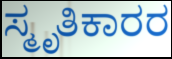
ಸ್ಮೃತಿಕಾರರ